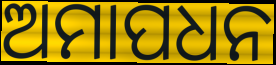
ଅମାପଧନ